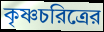
কৃষ্ণচরিত্রের